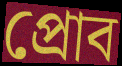
প্রোব